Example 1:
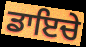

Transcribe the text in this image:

ਡਾਇਚੇ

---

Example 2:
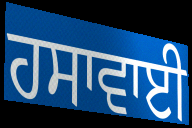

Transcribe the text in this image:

ਹਸਾਵਾਈ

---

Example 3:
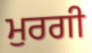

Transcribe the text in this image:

ਮੁਰਗੀ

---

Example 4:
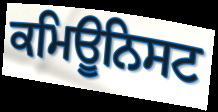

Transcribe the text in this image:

ਕਮਿਊਨਿਸਟ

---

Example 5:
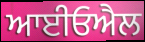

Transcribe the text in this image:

ਆਈਓਐਲ